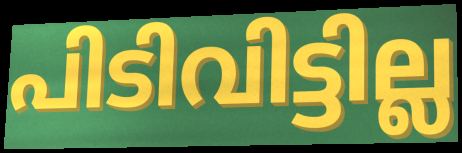
പിടിവിട്ടില്ല